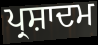
ਪ੍ਰਸ਼ਾਦਮ